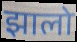
झालो